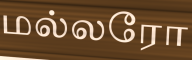
மல்லரோ